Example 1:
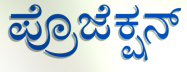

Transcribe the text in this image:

ಪ್ರೊಜೆಕ್ಷನ್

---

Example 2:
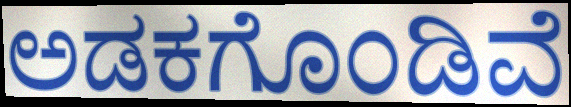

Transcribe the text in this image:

ಅಡಕಗೊಂಡಿವೆ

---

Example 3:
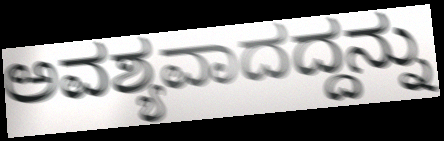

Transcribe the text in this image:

ಅವಶ್ಯವಾದದ್ದನ್ನು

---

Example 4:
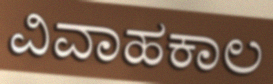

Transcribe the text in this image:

ವಿವಾಹಕಾಲ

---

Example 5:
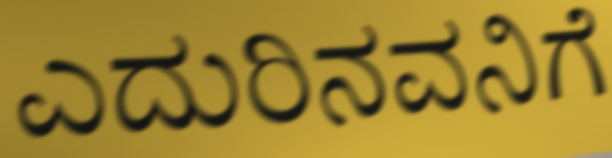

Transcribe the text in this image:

ಎದುರಿನವನಿಗೆ